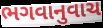
ભગવાનુવાચ